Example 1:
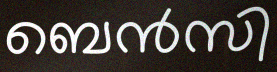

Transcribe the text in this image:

ബെൻസി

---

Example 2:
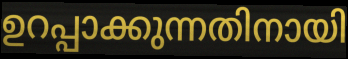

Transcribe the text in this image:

ഉറപ്പാക്കുന്നതിനായി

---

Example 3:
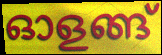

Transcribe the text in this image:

ഓളങ്ങ്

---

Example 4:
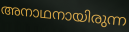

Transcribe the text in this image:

അനാഥനായിരുന്ന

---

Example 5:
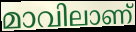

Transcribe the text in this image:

മാവിലാണ്